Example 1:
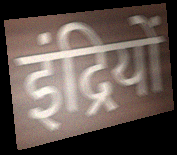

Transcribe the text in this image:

इंद्रियों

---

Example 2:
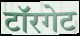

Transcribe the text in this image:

टॉरगेट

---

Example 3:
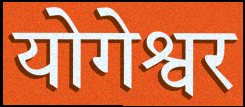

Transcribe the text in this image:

योगेश्वर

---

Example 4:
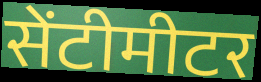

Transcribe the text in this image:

सेंटीमीटर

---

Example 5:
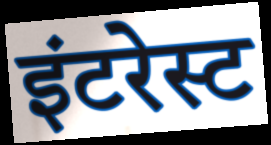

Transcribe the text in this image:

इंटरेस्ट